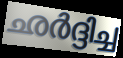
ഛർദ്ദിച്ച